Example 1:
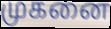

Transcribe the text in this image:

முகனை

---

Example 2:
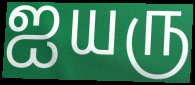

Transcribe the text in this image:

ஐயரு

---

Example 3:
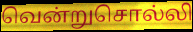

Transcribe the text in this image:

வென்றுசொல்லி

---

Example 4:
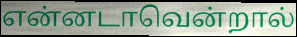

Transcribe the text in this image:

என்னடாவென்றால்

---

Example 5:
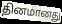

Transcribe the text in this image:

தினமானது